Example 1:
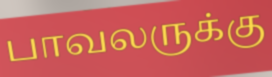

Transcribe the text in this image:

பாவலருக்கு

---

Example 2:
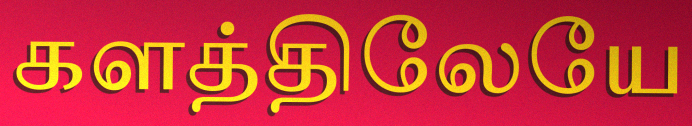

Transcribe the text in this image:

களத்திலேயே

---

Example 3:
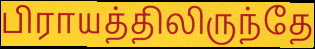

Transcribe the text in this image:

பிராயத்திலிருந்தே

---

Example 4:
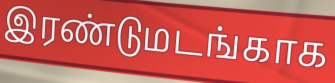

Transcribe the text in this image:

இரண்டுமடங்காக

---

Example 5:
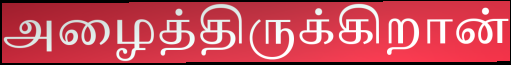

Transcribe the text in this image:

அழைத்திருக்கிறான்